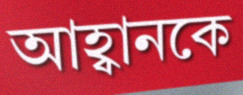
আহ্বানকে